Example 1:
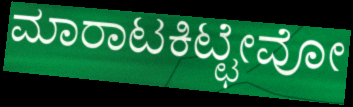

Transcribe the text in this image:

ಮಾರಾಟಕಿಟ್ಟೇವೋ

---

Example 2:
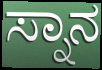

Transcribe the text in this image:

ಸ್ನಾನ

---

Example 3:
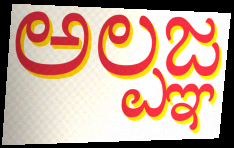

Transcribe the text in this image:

ಅಲ್ಪಜ್ಞ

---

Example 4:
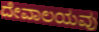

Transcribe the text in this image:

ದೇವಾಲಯವು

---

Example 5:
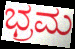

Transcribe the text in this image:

ಭ್ರಮ